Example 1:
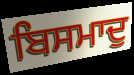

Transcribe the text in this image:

ਬਿਸਮਾਦੁ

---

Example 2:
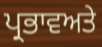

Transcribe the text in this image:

ਪ੍ਰਭਾਵਅਤੇ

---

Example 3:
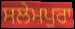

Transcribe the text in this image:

ਸਲੇਮਪੁਰਾ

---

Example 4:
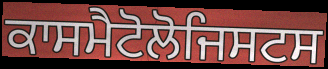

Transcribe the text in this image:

ਕਾਸਮੈਟੋਲੋਜਿਸਟਸ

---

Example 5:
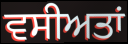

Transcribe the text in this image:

ਵਸੀਅਤਾਂ